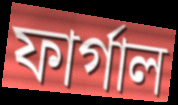
ফার্গাল